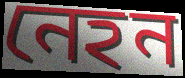
নেহন